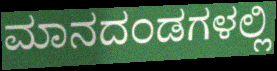
ಮಾನದಂಡಗಳಲ್ಲಿ